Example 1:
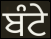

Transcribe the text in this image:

ਬੰਟੇ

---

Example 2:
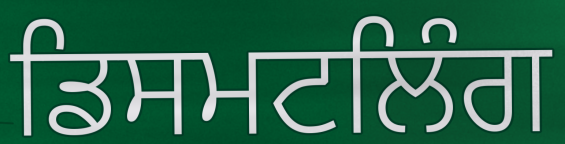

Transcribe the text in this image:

ਡਿਸਮਟਲਿੰਗ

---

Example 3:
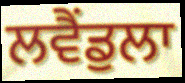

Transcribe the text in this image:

ਲਵੈਂਡੁਲਾ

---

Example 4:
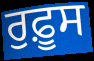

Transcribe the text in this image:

ਰੁਫ਼ੂਸ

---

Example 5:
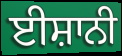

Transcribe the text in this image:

ਈਸ਼ਾਨੀ